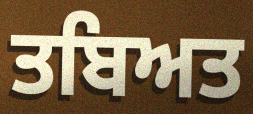
ਤਬਿਅਤ